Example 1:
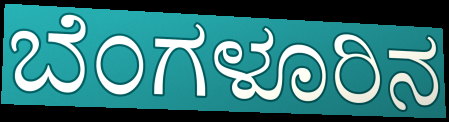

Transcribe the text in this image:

ಬೆಂಗಳೂರಿನ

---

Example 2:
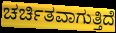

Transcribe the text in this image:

ಚರ್ಚಿತವಾಗುತ್ತಿದೆ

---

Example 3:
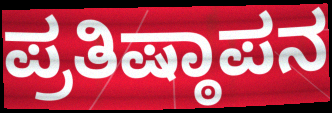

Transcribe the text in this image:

ಪ್ರತಿಷ್ಠಾಪನ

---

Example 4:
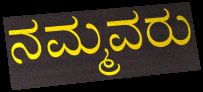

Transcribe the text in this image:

ನಮ್ಮವರು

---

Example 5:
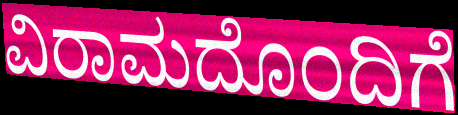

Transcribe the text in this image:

ವಿರಾಮದೊಂದಿಗೆ